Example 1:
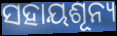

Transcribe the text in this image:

ସହାୟଶୂନ୍ୟ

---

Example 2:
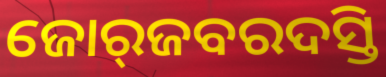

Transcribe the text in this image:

ଜୋର୍‍ଜବରଦସ୍ତି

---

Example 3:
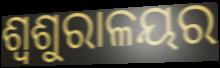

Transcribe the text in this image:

ଶ୍ୱଶୁରାଳୟର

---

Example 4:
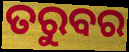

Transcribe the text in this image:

ତରୁବର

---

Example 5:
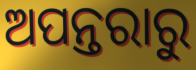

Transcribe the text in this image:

ଅପନ୍ତରାରୁ